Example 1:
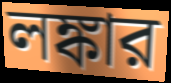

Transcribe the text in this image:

লঙ্কার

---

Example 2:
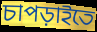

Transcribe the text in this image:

চাপড়াইতে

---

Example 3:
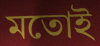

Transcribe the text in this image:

মতোই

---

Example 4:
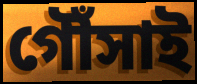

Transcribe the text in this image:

গৌঁসাই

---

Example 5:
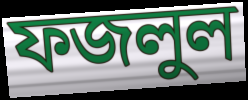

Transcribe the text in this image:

ফজলুল